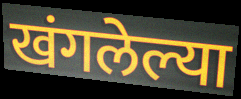
खंगलेल्या